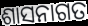
ଶାସନାଗତ